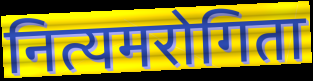
नित्यमरोगिता